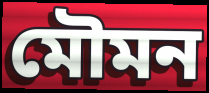
মৌমন